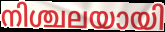
നിശ്ചലയായി